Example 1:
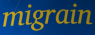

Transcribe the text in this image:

migrain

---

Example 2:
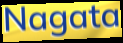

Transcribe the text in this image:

Nagata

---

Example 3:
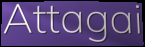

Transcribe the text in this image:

Attagai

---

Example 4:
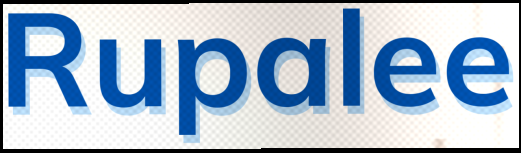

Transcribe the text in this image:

Rupalee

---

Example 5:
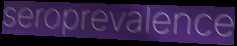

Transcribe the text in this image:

seroprevalence